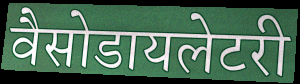
वैसोडायलेटरी